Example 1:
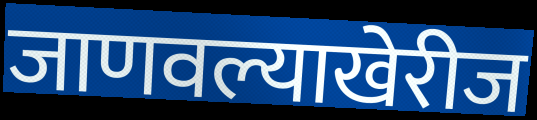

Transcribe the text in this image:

जाणवल्याखेरीज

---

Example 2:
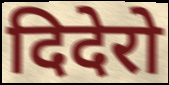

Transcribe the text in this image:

दिदेरो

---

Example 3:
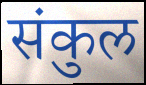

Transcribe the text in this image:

संकुल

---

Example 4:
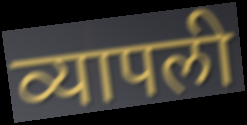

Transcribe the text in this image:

व्यापली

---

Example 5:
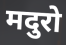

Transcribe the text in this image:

मदुरो